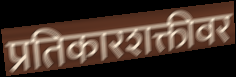
प्रतिकारशक्तीवर